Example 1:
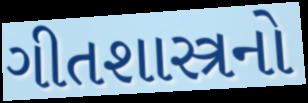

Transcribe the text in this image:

ગીતશાસ્ત્રનો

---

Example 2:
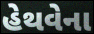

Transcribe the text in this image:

હેથવેના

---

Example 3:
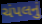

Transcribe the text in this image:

ચંપલનું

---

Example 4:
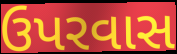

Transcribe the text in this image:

ઉપરવાસ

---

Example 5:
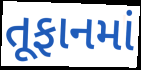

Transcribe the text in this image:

તૂફાનમાં